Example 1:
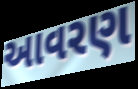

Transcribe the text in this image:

આવરણ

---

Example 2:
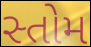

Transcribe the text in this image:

સ્તોમ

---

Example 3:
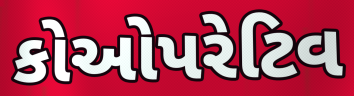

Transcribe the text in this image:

કોઓપરેટિવ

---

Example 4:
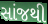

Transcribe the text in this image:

સાંજથી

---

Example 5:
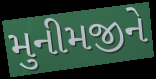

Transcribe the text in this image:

મુનીમજીને